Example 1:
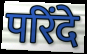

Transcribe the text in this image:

परिंदे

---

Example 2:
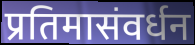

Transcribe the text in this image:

प्रतिमासंवर्धन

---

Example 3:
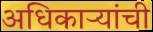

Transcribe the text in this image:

अधिकाऱ्यांची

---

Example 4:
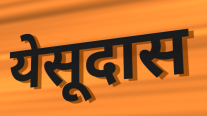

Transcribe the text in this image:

येसूदास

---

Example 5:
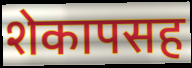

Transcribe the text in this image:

शेकापसह